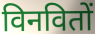
विनवितों